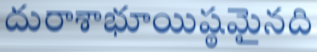
దురాశాభూయిష్ఠమైనది